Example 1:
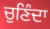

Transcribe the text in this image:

ਚੁਣਿੰਦਾ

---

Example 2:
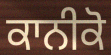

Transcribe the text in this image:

ਕਾਨੀਕੋ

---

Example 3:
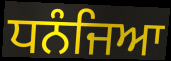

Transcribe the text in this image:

ਧਨੰਜਿਆ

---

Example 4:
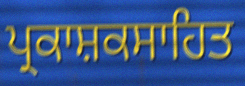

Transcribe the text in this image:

ਪ੍ਰਕਾਸ਼ਕਸਾਹਿਤ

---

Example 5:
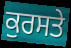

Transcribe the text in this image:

ਕੁਰਸਤੇ